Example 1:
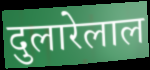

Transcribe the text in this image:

दुलारेलाल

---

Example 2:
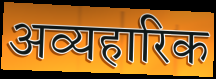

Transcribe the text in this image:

अव्यहारिक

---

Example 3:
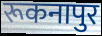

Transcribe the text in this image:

रूकनापुर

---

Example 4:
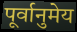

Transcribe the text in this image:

पूर्वानुमेय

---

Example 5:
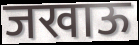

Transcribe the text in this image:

जखाऊ